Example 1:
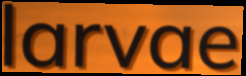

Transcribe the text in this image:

larvae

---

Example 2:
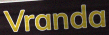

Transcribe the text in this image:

Vranda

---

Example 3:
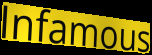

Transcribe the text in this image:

Infamous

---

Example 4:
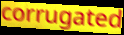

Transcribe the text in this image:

corrugated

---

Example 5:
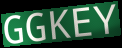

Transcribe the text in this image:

GGKEY